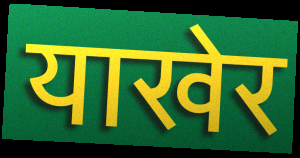
याखेर